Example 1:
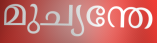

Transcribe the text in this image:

മുച്യന്തേ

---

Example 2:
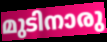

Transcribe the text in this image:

മുടിനാരു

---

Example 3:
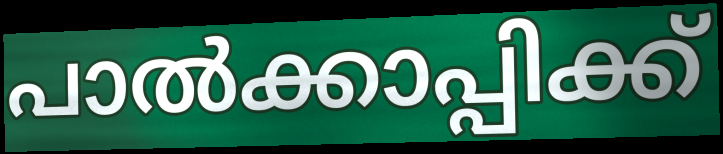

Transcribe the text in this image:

പാൽക്കാപ്പിക്ക്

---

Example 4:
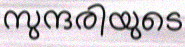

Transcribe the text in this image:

സുന്ദരിയുടെ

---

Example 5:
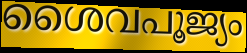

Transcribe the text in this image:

ശൈവപൂജ്യം